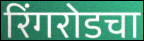
रिंगरोडचा